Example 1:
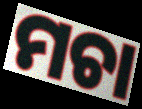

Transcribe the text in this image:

ମଚା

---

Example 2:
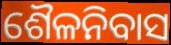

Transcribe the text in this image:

ଶୈଳନିବାସ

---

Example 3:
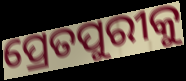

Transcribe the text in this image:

ପ୍ରେତପୁରୀକୁ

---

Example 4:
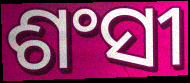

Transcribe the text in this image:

ଶଂସୀ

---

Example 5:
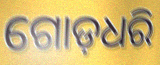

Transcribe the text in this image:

ଗୋଡ଼ଧରି